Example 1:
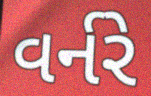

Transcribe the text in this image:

વર્નરે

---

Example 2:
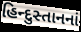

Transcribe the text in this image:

હિન્દુસ્તાનનાં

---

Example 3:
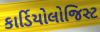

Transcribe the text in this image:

કાર્ડિયોલોજિસ્ટ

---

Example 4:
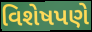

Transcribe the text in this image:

વિશેષપણે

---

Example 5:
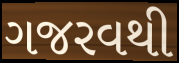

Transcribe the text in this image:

ગજરવથી